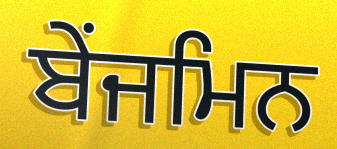
ਬੇਂਜਮਿਨ